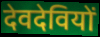
देवदेवियों